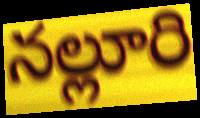
నల్లూరి